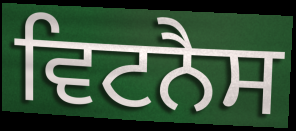
ਵਿਟਨੈਸ